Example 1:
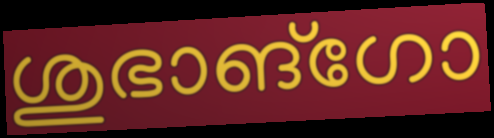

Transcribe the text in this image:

ശുഭാങ്ഗോ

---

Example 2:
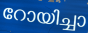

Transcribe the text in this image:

റോയിച്ചാ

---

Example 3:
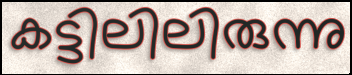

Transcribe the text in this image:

കട്ടിലിലിരുന്നു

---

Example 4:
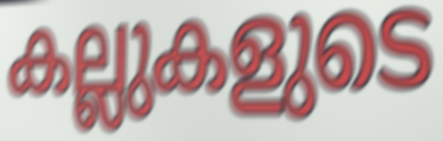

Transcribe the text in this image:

കല്ലുകളുടെ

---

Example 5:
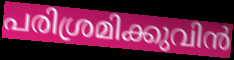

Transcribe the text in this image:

പരിശ്രമിക്കുവിൻ